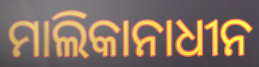
ମାଲିକାନାଧୀନ